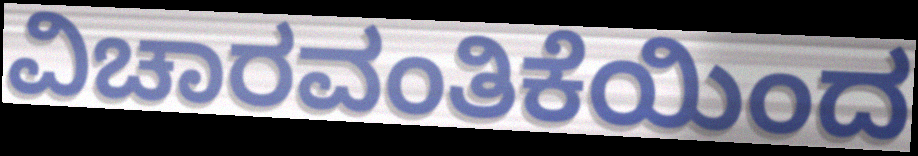
ವಿಚಾರವಂತಿಕೆಯಿಂದ